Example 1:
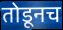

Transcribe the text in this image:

तोडूनच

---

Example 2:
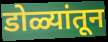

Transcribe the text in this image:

डोळ्यांतून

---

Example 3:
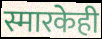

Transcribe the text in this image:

स्मारकेही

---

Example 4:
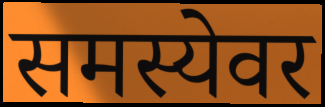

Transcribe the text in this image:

समस्येवर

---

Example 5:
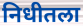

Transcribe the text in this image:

निधीतला